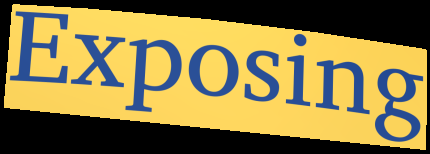
Exposing